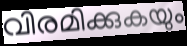
വിരമിക്കുകയും